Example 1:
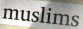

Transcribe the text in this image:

muslims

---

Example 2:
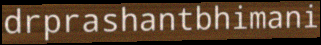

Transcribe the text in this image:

drprashantbhimani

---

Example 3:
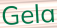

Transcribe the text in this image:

Gela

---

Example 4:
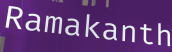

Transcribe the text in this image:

Ramakanth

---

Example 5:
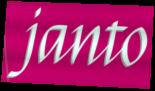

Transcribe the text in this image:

janto